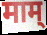
माम्